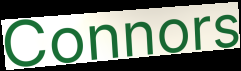
Connors